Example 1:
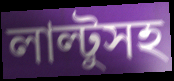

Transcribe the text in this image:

লাল্টুসহ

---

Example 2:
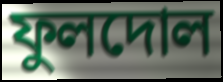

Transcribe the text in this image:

ফুলদোল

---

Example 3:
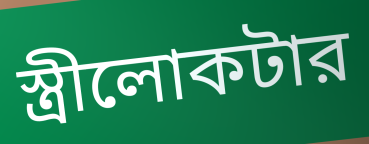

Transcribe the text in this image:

স্ত্রীলোকটার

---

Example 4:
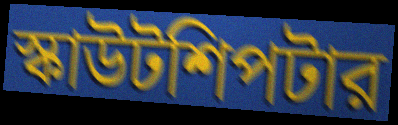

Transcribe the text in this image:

স্কাউটশিপটার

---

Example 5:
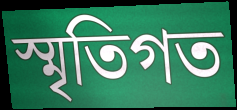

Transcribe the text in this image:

স্মৃতিগত